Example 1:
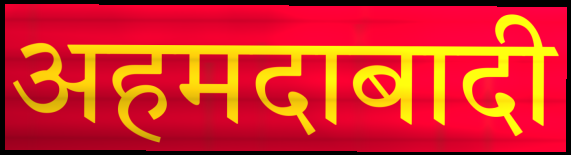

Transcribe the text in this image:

अहमदाबादी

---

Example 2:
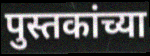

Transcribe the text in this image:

पुस्तकांच्या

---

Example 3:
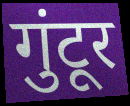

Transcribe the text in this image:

गुंटूर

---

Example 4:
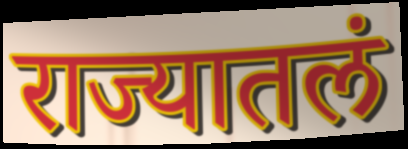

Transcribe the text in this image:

राज्यातलं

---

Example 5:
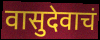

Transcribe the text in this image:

वासुदेवाचं